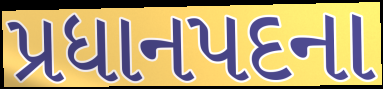
પ્રધાનપદના